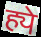
ह्ये